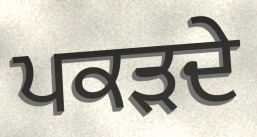
ਪਕੜਦੇ